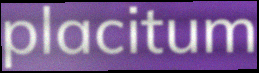
placitum